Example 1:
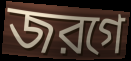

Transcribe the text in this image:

জরগে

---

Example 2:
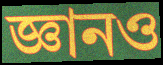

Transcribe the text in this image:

জ্ঞানও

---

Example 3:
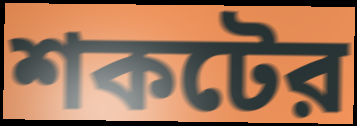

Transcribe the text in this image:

শকটের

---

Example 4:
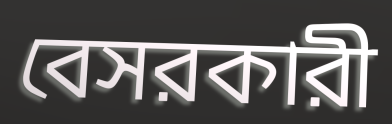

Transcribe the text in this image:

বেসরকারী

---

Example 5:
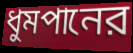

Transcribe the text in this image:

ধুমপানের